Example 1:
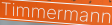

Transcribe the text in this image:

Timmermann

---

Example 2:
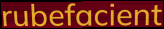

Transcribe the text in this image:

rubefacient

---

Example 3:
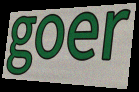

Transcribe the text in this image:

goer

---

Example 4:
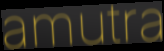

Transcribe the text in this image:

amutra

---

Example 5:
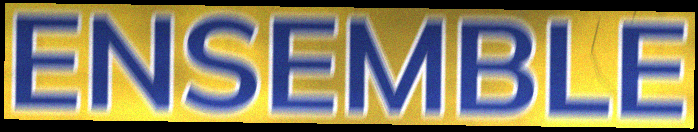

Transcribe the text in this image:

ENSEMBLE